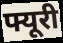
फ्यूरी